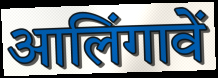
आलिंगावें